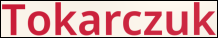
Tokarczuk